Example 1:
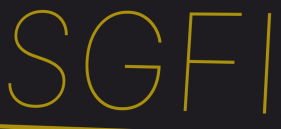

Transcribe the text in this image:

SGFI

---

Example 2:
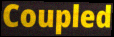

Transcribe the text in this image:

Coupled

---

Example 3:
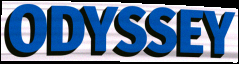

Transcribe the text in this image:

ODYSSEY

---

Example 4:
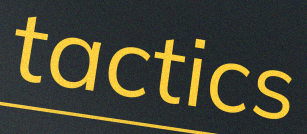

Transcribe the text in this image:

tactics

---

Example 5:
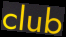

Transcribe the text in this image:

club